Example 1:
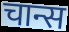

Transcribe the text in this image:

चान्स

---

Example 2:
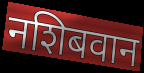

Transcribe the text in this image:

नशिबवान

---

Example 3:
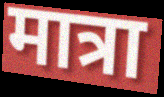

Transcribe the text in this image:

मात्रा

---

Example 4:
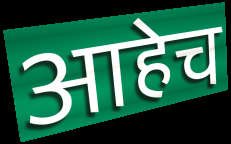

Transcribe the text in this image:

आहेच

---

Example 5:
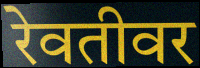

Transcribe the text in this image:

रेवतीवर